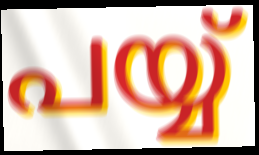
പയ്യ്